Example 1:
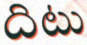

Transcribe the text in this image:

దిటు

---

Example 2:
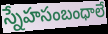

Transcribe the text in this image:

స్నేహసంబంధాలే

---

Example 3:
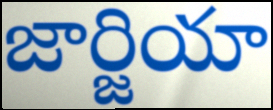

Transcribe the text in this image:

జార్జియా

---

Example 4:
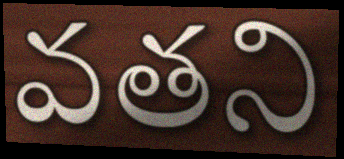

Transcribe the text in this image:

వతని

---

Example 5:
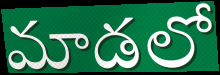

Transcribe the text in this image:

మాడలో